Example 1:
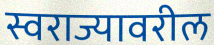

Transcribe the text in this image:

स्वराज्यावरील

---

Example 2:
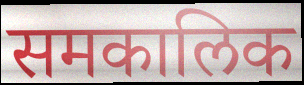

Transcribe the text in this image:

समकालिक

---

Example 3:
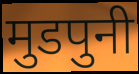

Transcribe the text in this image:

मुडपुनी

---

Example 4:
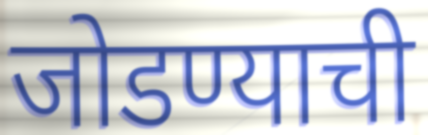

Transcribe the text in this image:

जोडण्याची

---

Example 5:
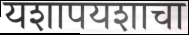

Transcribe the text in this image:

यशापयशाचा